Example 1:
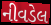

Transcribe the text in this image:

નીવડેલ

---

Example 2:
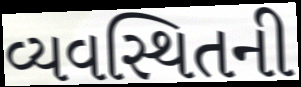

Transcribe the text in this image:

વ્યવસ્થિતની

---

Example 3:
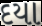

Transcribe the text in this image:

દયા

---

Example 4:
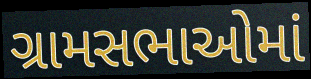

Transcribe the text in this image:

ગ્રામસભાઓમાં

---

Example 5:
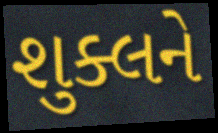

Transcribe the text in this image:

શુક્લને